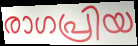
രാഗപ്രിയ